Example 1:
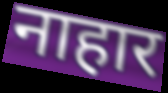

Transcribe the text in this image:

नाहार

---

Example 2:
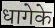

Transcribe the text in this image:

धागेके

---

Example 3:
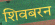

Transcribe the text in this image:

शिवबरन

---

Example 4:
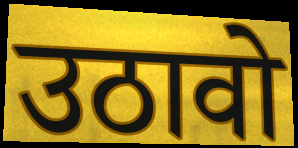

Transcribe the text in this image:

उठावो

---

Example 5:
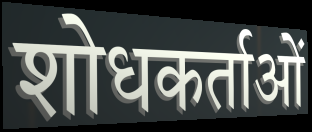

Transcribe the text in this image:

शोधकर्ताओं